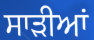
ਸਾਡ਼ੀਆਂ